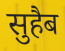
सुहैब